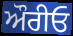
ਔਰੀਓ